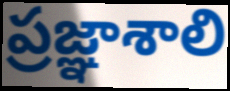
ప్రజ్ఞాశాలి